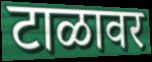
टाळावर